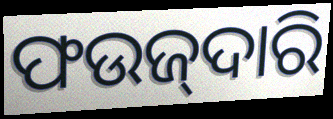
ଫଉଜ୍‌ଦାରି